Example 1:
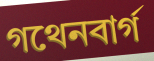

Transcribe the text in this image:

গথেনবার্গ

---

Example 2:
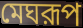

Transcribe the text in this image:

মেঘরূপ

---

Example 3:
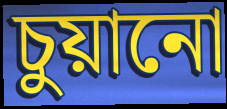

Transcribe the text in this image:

চুয়ানো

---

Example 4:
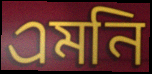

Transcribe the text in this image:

এমনি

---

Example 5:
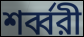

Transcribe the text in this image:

শর্ব্বরী